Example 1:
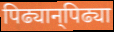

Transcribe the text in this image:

पिढ्यान्‌पिढ्या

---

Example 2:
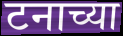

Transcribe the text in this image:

टनाच्या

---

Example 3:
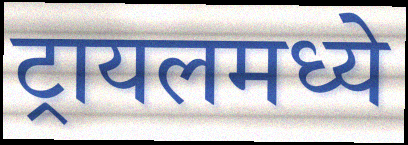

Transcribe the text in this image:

ट्रायलमध्ये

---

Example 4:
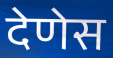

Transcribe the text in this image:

देणेस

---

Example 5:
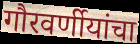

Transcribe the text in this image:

गौरवर्णीयांचा